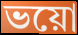
ভয়ো